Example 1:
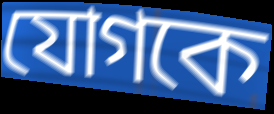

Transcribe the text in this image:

যোগকে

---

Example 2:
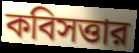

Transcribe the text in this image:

কবিসত্তার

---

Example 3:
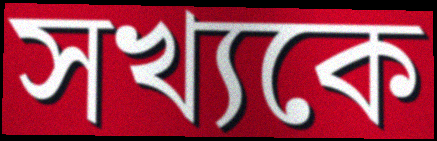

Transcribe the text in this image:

সখ্যকে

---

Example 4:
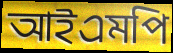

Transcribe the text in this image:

আইএমপি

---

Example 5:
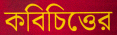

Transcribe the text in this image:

কবিচিত্তের